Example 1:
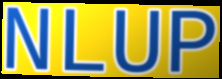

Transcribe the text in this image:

NLUP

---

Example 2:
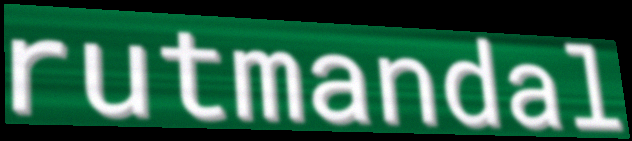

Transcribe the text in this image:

rutmandal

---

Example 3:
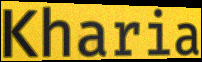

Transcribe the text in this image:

Kharia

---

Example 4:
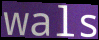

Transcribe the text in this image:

wals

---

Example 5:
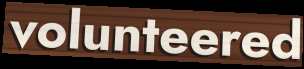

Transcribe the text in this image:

volunteered